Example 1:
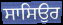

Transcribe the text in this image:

ਸਾਸਿਉਰ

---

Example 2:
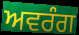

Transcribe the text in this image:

ਅਵਰੰਗ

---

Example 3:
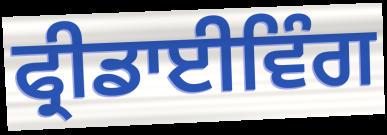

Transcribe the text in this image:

ਫ੍ਰੀਡਾਈਵਿੰਗ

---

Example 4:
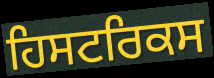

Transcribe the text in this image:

ਹਿਸਟਰਿਕਸ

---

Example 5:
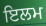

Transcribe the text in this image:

ਇਲਮ